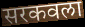
सरकवला